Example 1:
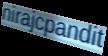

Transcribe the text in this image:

nirajcpandit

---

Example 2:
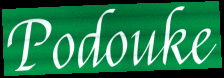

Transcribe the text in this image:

Podouke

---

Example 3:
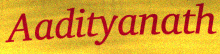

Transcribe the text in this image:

Aadityanath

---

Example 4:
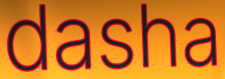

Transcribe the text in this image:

dasha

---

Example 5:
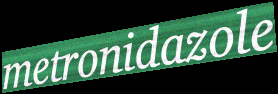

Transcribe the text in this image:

metronidazole